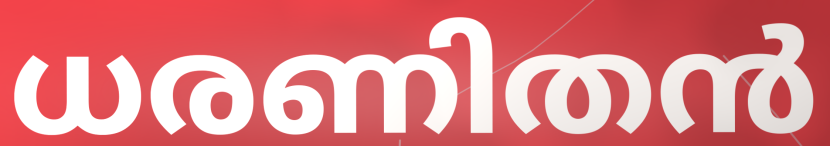
ധരണിതൻ